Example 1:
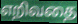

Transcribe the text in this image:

எறிவதை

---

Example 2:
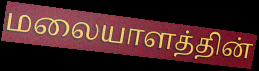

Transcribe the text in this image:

மலையாளத்தின்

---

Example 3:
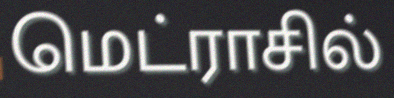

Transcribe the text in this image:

மெட்ராசில்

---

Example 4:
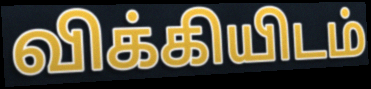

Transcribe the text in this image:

விக்கியிடம்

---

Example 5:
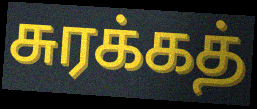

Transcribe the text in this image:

சுரக்கத்